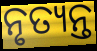
ନୃତ୍ୟନ୍ତ